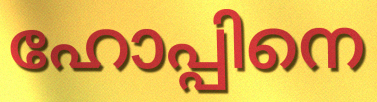
ഹോപ്പിനെ